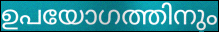
ഉപയോഗത്തിനും